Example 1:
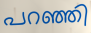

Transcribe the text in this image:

പറഞ്ഞി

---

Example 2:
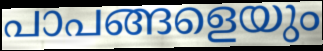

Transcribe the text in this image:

പാപങ്ങളെയും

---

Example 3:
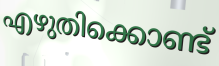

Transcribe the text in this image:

എഴുതിക്കൊണ്ട്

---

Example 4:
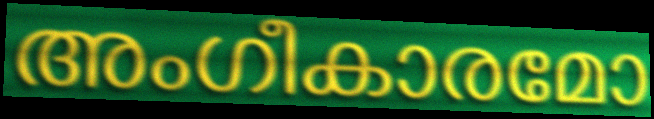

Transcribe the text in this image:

അംഗീകാരമോ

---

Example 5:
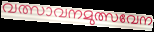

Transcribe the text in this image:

വത്സാവനമുത്സവേന